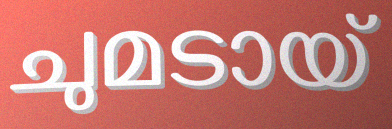
ചുമടായ്